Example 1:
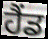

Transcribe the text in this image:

ਹੈਂਡ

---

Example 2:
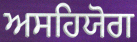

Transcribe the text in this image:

ਅਸਹਿਯੋਗ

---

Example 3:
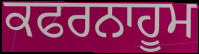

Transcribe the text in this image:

ਕਫਰਨਾਹੂਮ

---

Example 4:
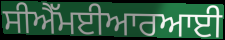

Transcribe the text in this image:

ਸੀਐੱਮਈਆਰਆਈ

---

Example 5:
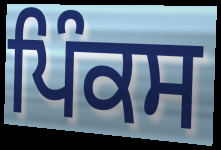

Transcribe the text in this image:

ਪਿੰਕਸ